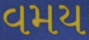
વમય